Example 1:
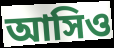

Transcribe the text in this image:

আসিও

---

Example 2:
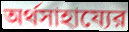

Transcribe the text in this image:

অর্থসাহায্যের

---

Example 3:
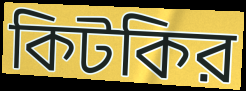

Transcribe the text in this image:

কিটকির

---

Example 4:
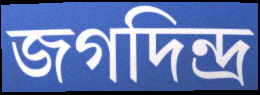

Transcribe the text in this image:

জগদিন্দ্র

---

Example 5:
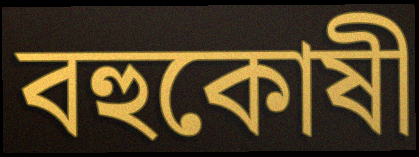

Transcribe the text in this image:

বহুকোষী